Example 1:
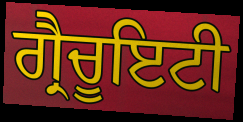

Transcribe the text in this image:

ਗ੍ਰੈਚੂਇਟੀ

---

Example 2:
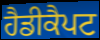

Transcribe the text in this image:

ਹੈਡੀਕੈਪਟ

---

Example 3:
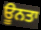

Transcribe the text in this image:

ਊਨਤਾ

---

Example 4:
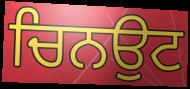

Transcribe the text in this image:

ਚਿਨਉਟ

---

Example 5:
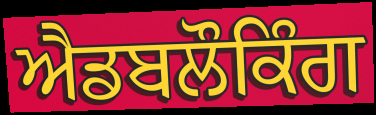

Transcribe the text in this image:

ਐਡਬਲੌਕਿੰਗ